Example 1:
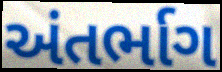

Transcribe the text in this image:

અંતર્ભાગ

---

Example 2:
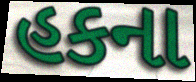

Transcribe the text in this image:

હકના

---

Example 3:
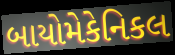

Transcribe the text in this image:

બાયોમેકેનિકલ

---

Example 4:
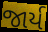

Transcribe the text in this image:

જાર્ય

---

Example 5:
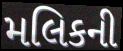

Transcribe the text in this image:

મલિકની